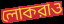
লোকরাও